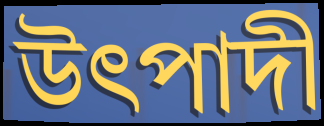
উৎপাদী